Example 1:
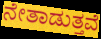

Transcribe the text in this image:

ನೇತಾಡುತ್ತವೆ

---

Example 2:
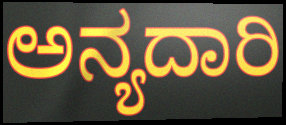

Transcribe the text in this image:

ಅನ್ಯದಾರಿ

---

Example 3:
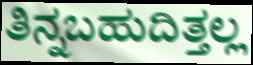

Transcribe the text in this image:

ತಿನ್ನಬಹುದಿತ್ತಲ್ಲ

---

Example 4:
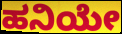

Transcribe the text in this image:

ಹನಿಯೇ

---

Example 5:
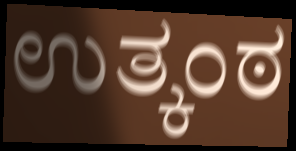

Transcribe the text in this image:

ಉತ್ಕಂಠ